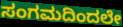
ಸಂಗಮದಿಂದಲೇ